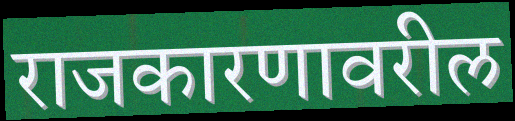
राजकारणावरील